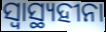
ସ୍ଵାସ୍ଥ୍ୟହୀନା